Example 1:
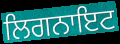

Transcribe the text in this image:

ਲਿਗਨਾਇਟ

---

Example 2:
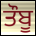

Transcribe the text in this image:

ਤੌਬੂ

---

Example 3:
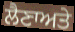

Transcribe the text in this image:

ਲੈਣਾਅਤੇ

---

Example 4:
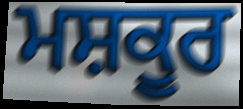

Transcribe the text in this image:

ਮਸ਼ਕੂਰ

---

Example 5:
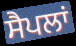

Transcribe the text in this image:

ਸੈਪਲਾਂ